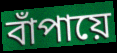
বাঁপায়ে